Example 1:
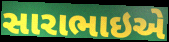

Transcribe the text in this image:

સારાભાઇએ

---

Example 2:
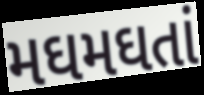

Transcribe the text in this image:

મઘમઘતાં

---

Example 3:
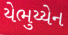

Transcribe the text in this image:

યેભુય્યેન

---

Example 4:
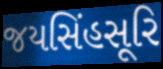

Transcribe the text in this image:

જયસિંહસૂરિ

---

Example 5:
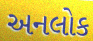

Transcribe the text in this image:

અનલોક